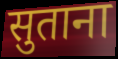
सुताना